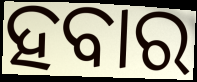
ହବାର